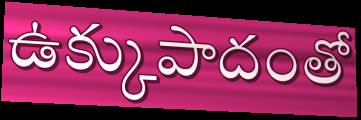
ఉక్కుపాదంతో